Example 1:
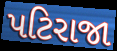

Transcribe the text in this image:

પટિરાજા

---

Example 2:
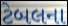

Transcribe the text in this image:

ટેબલના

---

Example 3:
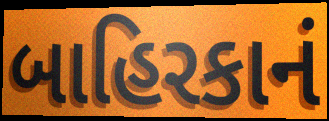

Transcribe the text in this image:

બાહિરકાનં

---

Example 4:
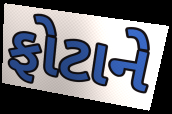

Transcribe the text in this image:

ફોટાને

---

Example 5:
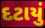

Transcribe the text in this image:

દટાયું